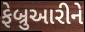
ફેબ્રુઆરીને